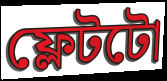
ফ্লেটটো